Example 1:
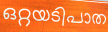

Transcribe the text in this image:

ഒറ്റയടിപാത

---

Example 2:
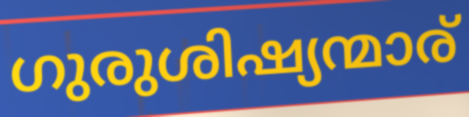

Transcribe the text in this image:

ഗുരുശിഷ്യന്മാര്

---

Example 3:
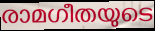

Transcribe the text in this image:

രാമഗീതയുടെ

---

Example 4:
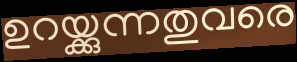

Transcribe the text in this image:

ഉറയ്ക്കുന്നതുവരെ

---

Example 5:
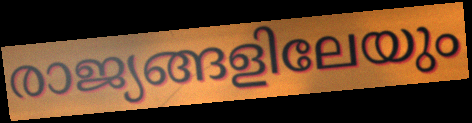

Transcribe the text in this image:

രാജ്യങ്ങളിലേയും